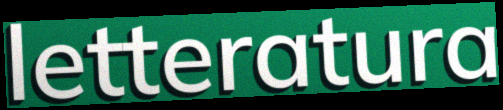
letteratura